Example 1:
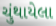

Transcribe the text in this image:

ચુંથાયેલા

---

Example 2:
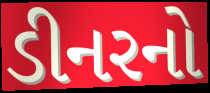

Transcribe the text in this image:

ડીનરનો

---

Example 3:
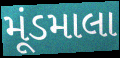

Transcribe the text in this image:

મૂંડમાલા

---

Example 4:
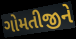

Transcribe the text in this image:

ગોમતીજીને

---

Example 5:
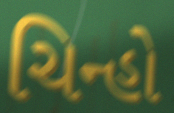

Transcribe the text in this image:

ચિન્હો